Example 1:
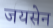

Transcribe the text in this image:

जयसेन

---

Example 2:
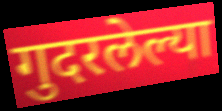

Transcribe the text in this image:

गुदरलेल्या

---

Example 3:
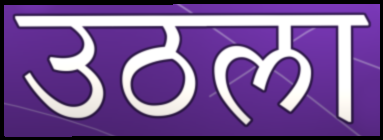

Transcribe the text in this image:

उठला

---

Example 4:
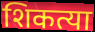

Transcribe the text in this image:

शिकत्या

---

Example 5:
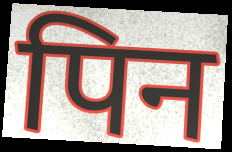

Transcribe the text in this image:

पिन